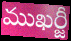
ముఖర్జీ